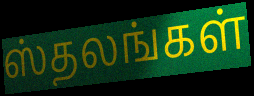
ஸ்தலங்கள்